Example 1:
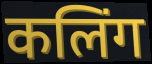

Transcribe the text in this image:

कलिंग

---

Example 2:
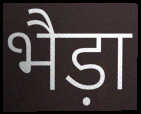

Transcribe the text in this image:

भैड़ा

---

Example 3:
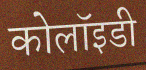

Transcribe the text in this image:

कोलॉइडी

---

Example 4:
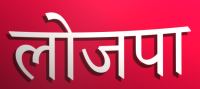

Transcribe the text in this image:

लोजपा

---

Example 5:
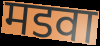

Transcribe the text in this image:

मडवा